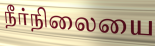
நீர்நிலையை